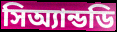
সিঅ্যান্ডডি